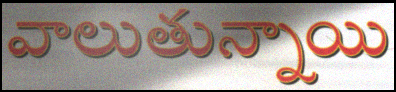
వాలుతున్నాయి